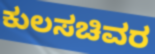
ಕುಲಸಚಿವರ